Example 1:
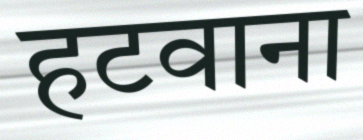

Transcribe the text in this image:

हटवाना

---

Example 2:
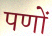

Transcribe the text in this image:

पणों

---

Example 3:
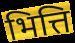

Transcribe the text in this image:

भित्ति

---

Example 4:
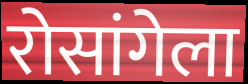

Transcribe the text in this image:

रोसांगेला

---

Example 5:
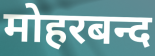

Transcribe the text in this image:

मोहरबन्द